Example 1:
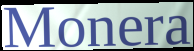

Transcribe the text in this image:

Monera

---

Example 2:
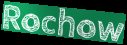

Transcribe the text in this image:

Rochow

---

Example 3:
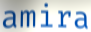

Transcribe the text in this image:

amira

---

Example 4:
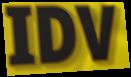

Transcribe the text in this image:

IDV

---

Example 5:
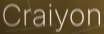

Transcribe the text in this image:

Craiyon